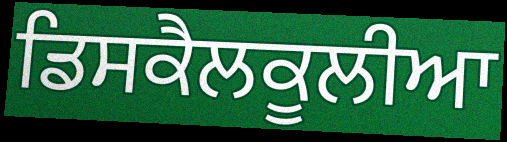
ਡਿਸਕੈਲਕੂਲੀਆ